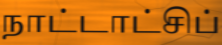
நாட்டாட்சிப்